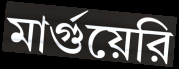
মার্গুয়েরি